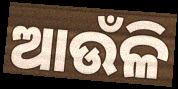
ଆଉଁଳି